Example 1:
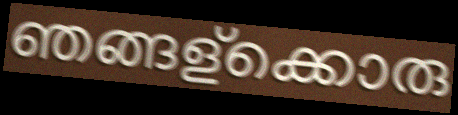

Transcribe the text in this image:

ഞങ്ങള്ക്കൊരു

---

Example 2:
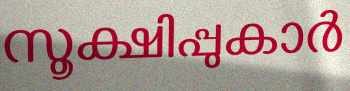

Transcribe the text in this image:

സൂക്ഷിപ്പുകാർ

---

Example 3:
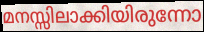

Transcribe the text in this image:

മനസ്സിലാക്കിയിരുന്നോ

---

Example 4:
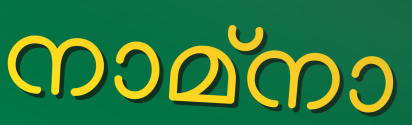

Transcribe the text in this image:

നാമ്നാ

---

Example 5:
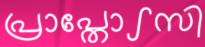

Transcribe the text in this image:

പ്രാപ്തോഽസി